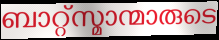
ബാറ്റ്സ്മാന്മാരുടെ